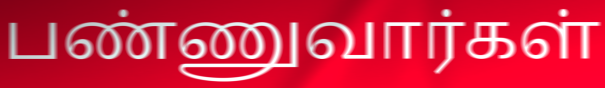
பண்ணுவார்கள்